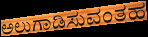
ಅಲುಗಾಡಿಸುವಂತಹ